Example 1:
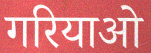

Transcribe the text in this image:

गरियाओ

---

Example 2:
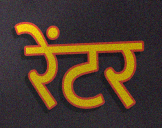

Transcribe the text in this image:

रेंटर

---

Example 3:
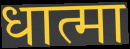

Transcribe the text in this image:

धात्मा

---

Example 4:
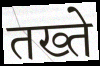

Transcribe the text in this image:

तख्ते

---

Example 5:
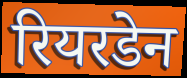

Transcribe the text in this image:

रियरडेन